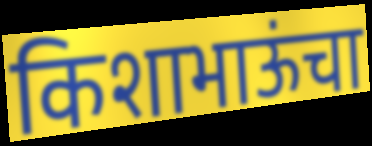
किशाभाऊंचा